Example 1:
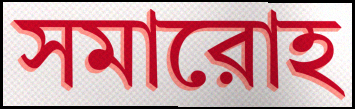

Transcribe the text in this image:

সমারোহ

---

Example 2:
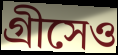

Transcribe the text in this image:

গ্রীসেও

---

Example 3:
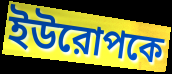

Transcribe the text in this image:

ইউরোপকে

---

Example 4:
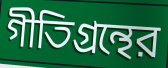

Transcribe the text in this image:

গীতিগ্রন্থের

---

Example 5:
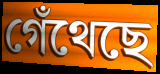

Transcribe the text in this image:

গেঁথেছে